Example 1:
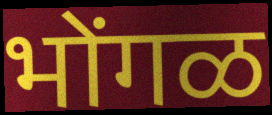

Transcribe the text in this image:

भोंगळ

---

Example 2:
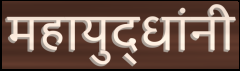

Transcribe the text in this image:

महायुद्धांनी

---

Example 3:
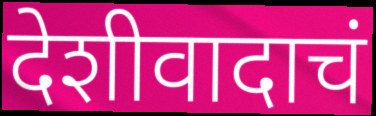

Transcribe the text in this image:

देशीवादाचं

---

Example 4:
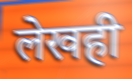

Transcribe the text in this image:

लेखही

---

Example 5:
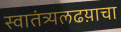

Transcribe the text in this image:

स्वातंत्र्यलढय़ाचा